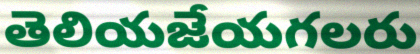
తెలియజేయగలరు